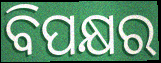
ବିପକ୍ଷର